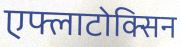
एफ्लाटोक्सिन